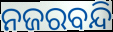
ନଜରବନ୍ଦି